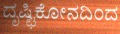
ದೃಷ್ಟಿಕೋನದಿಂದ